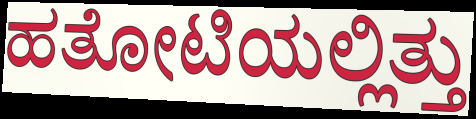
ಹತೋಟಿಯಲ್ಲಿತ್ತು